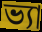
ভ্যা